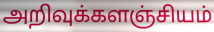
அறிவுக்களஞ்சியம்